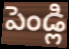
పెండ్లి